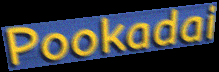
Pookadai